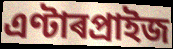
এণ্টাৰপ্ৰাইজ